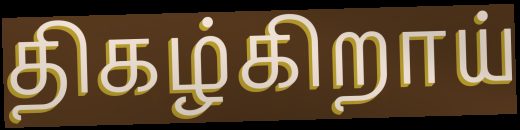
திகழ்கிறாய்